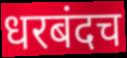
धरबंदच